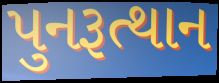
પુનરૂત્થાન